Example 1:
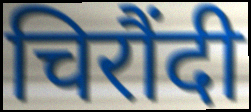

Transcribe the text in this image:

चिरौंदी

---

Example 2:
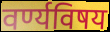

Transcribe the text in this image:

वर्ण्यविषय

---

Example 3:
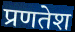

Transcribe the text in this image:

प्रणतेश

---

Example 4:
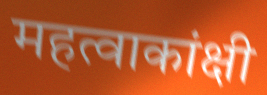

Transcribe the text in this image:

महत्वाकांक्षी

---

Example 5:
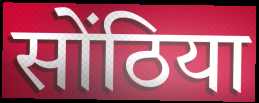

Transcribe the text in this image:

सोंठिया